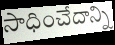
సాధించేదాన్ని